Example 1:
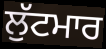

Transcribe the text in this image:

ਲੁੱਟਮਾਰ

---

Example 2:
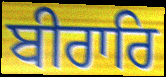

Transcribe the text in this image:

ਬੀਰਾਰਿ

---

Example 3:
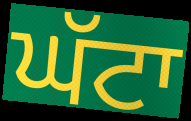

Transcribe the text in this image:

ਘੱਟਾ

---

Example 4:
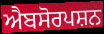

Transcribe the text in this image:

ਐਬਸੋਰਪਸ਼ਨ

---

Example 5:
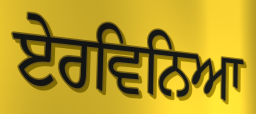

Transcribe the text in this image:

ਏਰਵਿਨਿਆ